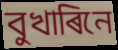
বুখাৰিনে